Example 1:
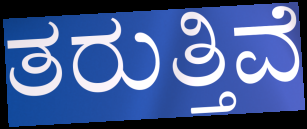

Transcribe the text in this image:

ತರುತ್ತಿವೆ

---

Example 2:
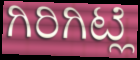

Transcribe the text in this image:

ಗಿರಿಗಿಟ್ಲೆ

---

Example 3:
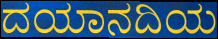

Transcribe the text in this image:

ದಯಾನದಿಯ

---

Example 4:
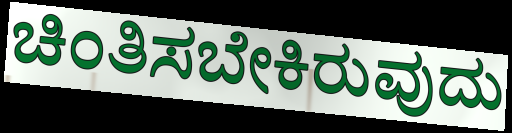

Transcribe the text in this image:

ಚಿಂತಿಸಬೇಕಿರುವುದು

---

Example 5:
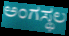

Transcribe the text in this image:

ಅಂಗಸ್ಥಲ